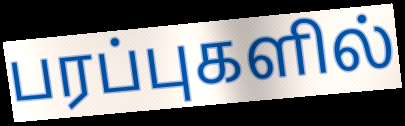
பரப்புகளில்